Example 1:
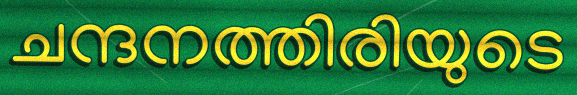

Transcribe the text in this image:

ചന്ദനത്തിരിയുടെ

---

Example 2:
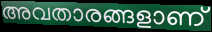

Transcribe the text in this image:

അവതാരങ്ങളാണ്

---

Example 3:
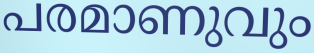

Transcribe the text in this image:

പരമാണുവും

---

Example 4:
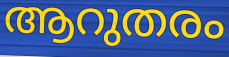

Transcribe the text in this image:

ആറുതരം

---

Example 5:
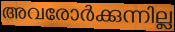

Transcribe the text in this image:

അവരോർക്കുന്നില്ല